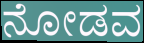
ನೋಡವ